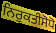
ਨਿਰੁਕਤੀਸੋਧੋ